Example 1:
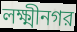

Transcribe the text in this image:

লক্ষ্মীনগর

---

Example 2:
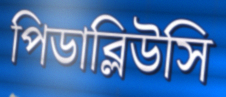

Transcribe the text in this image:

পিডাব্লিউসি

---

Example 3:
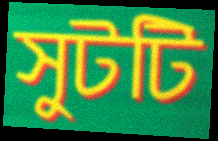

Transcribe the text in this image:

সুটটি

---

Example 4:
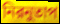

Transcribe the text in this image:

নিরনুতাপ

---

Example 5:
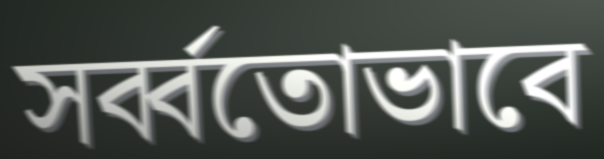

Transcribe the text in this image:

সর্ব্বতোভাবে